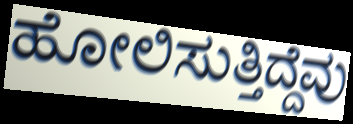
ಹೋಲಿಸುತ್ತಿದ್ದೆವು